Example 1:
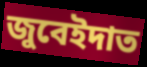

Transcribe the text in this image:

জুবেইদাত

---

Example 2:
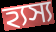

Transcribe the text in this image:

হ্যস্য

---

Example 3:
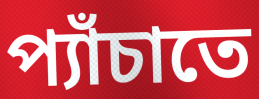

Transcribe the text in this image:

প্যাঁচাতে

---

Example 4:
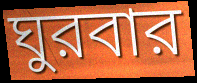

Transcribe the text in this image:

ঘুরবার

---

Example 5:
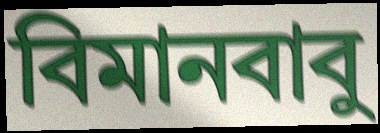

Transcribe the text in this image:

বিমানবাবু